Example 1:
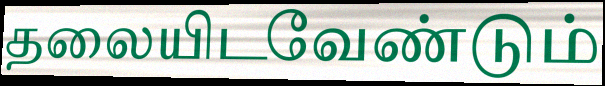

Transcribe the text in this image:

தலையிடவேண்டும்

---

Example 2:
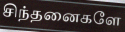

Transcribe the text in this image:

சிந்தனைகளே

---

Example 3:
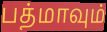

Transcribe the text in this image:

பத்மாவும்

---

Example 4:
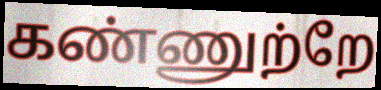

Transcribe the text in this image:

கண்ணுற்றே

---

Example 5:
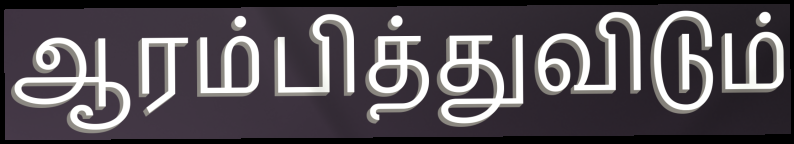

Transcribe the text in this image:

ஆரம்பித்துவிடும்